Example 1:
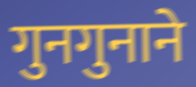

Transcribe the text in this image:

गुनगुनाने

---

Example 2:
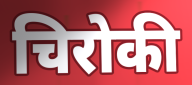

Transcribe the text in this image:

चिरोकी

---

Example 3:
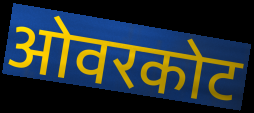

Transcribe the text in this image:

ओवरकोट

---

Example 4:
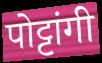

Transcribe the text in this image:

पोट्टांगी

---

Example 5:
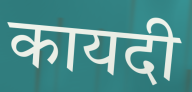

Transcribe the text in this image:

कायदी